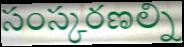
సంస్కరణల్ని